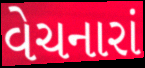
વેચનારાં